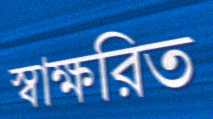
স্বাক্ষরিত